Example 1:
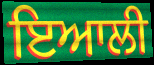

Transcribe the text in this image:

ਇਆਲੀ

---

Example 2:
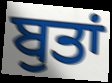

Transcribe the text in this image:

ਬੁਤਾਂ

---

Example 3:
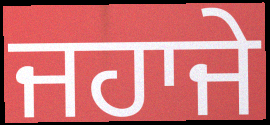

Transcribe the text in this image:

ਜਹਾਜੇ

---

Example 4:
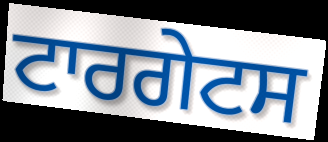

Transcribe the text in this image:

ਟਾਰਗੇਟਸ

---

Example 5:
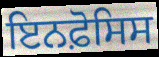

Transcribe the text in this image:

ਇਨਫ਼ੋਸਿਸ